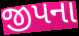
જીપના